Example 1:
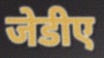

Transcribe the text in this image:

जेडीए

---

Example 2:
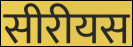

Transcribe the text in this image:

सीरीयस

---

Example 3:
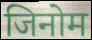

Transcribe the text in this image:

जिनोम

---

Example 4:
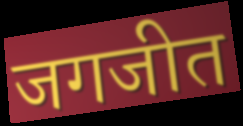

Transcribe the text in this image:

जगजीत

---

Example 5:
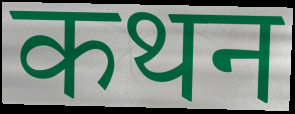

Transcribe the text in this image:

कथन